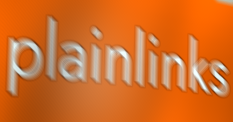
plainlinks